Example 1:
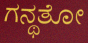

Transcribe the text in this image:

ಗನ್ಥತೋ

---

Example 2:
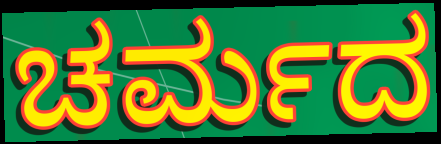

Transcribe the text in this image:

ಚರ್ಮದ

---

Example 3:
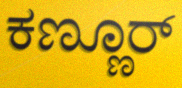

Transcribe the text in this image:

ಕಣ್ಣೂರ್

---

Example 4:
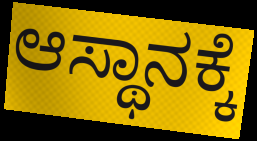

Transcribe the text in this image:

ಆಸ್ಥಾನಕ್ಕೆ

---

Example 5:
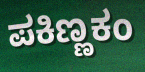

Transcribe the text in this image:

ಪಕಿಣ್ಣಕಂ